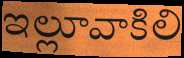
ఇల్లూవాకిలి